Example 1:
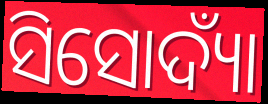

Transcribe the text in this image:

ସିସୋଦ୍ୟାଁ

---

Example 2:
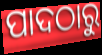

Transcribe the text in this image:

ପାଦଠାରୁ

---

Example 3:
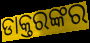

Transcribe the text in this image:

ଡାକ୍ତରଙ୍କର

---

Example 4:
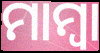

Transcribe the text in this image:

ମାମ୍ଵା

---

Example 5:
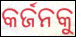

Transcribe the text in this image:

କର୍ଜନକୁ